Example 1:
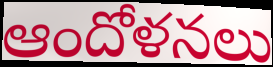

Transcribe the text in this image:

ఆందోళనలు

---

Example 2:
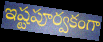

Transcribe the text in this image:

ఇష్టపూర్వకంగా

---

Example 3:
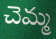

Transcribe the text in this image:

చెమ్మ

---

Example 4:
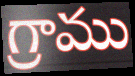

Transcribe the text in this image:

గ్రాము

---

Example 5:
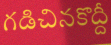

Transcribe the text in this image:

గడిచినకొద్దీ